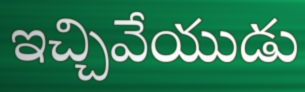
ఇచ్చివేయుడు